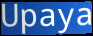
Upaya